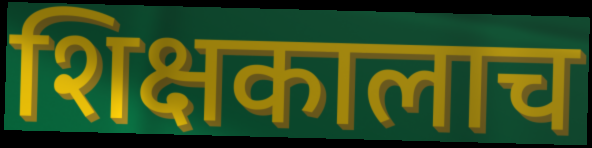
शिक्षकालाच